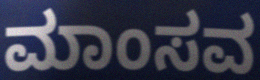
ಮಾಂಸವ